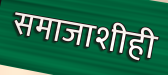
समाजाशीही